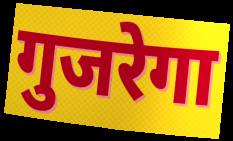
गुजरेगा